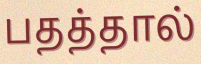
பதத்தால்